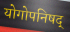
योगोपनिषद्